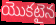
యొకటైన